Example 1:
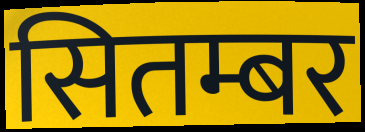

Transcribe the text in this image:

सितम्‍बर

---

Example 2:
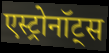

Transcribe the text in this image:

एस्ट्रोनॉट्स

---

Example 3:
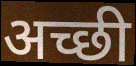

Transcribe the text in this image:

अच्छी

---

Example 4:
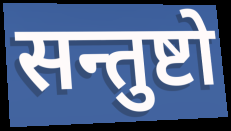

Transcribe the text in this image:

सन्तुष्टो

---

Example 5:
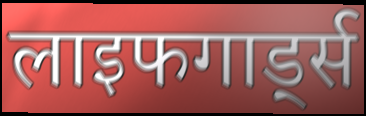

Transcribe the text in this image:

लाइफगार्ड्स